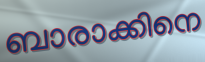
ബാരാക്കിനെ